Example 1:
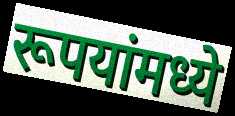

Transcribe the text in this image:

रूपयांमध्ये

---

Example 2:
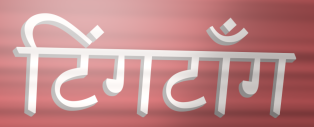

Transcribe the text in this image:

टिंगटॉंग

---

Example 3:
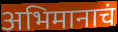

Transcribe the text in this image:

अभिमानाचं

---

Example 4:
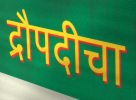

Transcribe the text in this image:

द्रौपदीचा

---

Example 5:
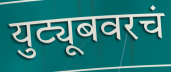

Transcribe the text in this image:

युट्यूबवरचं